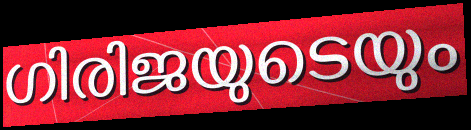
ഗിരിജയുടെയും